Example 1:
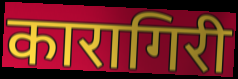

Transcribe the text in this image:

कारागिरी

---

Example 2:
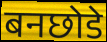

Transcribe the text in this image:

बनछोडे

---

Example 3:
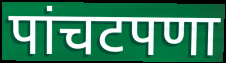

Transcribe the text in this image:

पांचटपणा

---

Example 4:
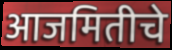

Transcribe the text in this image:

आजमितीचे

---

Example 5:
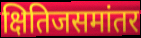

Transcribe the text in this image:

क्षितिजसमांतर